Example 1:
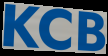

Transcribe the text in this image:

KCB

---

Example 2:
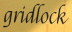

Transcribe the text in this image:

gridlock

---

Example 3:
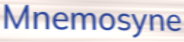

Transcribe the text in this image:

Mnemosyne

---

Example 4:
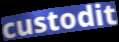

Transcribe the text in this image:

custodit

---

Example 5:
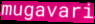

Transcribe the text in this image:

mugavari